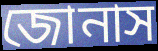
জোনাস